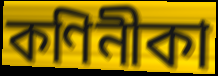
কণিনীকা